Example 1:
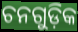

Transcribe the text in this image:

ଚନଗୁଡ଼ିକ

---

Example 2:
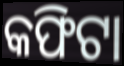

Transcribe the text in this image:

କଫିଟା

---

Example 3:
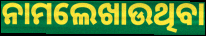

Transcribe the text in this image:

ନାମଲେଖାଉଥିବା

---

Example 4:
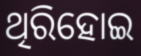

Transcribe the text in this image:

ଥିରିହୋଇ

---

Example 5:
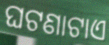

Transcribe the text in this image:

ଘଟଣାଟାଏ